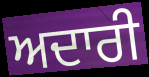
ਅਦਾਰੀ